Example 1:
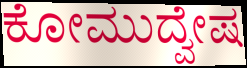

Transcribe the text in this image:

ಕೋಮುದ್ವೇಷ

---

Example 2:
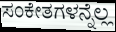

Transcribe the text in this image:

ಸಂಕೇತಗಳನ್ನೆಲ್ಲ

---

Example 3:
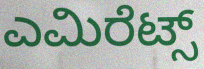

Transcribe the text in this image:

ಎಮಿರೆಟ್ಸ್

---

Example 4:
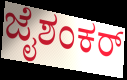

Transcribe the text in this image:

ಜೈಶಂಕರ್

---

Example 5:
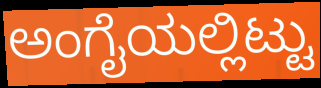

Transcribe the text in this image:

ಅಂಗೈಯಲ್ಲಿಟ್ಟು